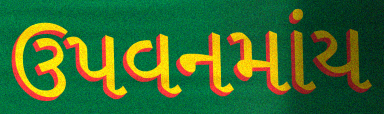
ઉપવનમાંય